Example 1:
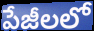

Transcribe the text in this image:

పేజీలలో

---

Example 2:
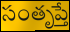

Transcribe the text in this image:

సంతృప్తే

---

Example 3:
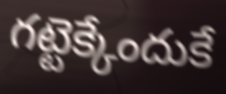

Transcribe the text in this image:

గట్టెక్కేందుకే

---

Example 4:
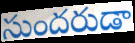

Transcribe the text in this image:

సుందరుడా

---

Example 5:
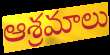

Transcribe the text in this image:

ఆశ్రమాలు